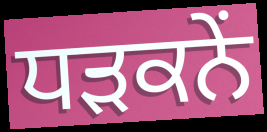
ਧੜਕਨੇਂ